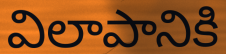
విలాపానికి